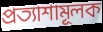
প্রত্যাশামূলক